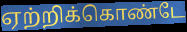
ஏற்றிக்கொண்டே